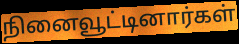
நினைவூட்டினார்கள்